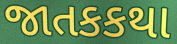
જાતકકથા